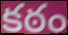
కఠం